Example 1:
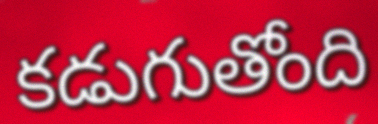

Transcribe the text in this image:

కడుగుతోంది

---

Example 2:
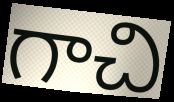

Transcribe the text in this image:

గాచి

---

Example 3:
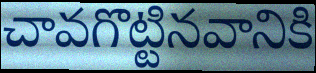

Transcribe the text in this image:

చావగొట్టినవానికి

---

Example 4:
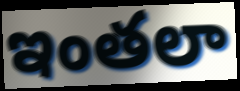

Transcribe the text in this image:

ఇంతలా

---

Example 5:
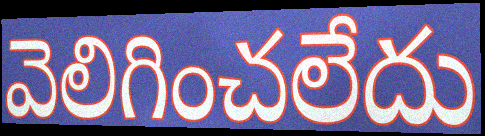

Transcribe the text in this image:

వెలిగించలేదు